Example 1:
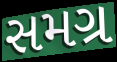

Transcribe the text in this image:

સમગ્ર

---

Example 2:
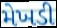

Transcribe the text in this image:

મેખડી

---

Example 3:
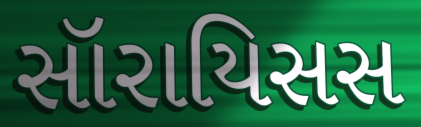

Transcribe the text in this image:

સૉરાયિસસ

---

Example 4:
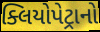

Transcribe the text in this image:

ક્લિયોપેટ્રાનો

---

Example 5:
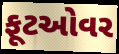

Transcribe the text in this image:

ફૂટઓવર